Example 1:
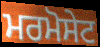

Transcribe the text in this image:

ਮਰਮੋਸੇਟ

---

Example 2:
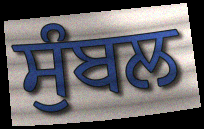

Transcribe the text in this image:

ਸੁੰਬਲ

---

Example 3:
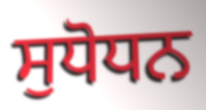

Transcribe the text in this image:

ਸੁਧੋਧਨ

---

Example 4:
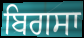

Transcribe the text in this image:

ਬਿਗਸਾ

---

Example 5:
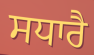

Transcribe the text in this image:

ਸਧਾਰੈ